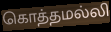
கொத்தமல்லி